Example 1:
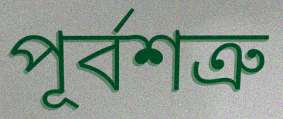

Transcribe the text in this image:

পূর্বশত্রু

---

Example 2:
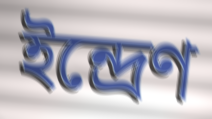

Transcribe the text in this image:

ইন্দ্রেণ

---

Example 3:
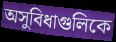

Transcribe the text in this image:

অসুবিধাগুলিকে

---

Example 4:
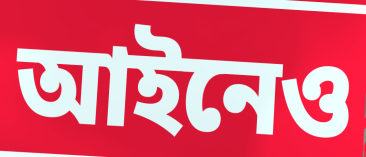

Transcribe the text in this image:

আইনেও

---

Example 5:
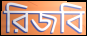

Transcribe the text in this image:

রিজবি